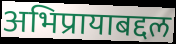
अभिप्रायाबद्दल